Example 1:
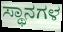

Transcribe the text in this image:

ಸ್ಥಾನಗಳ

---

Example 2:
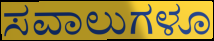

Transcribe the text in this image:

ಸವಾಲುಗಳೂ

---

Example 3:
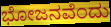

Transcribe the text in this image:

ಭೋಜನವೆಂದು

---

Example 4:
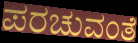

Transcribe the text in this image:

ಪರಚುವಂತೆ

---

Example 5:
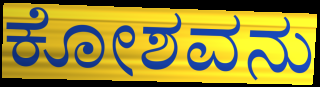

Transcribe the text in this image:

ಕೋಶವನು